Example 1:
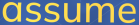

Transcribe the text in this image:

assume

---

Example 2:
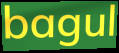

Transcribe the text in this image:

bagul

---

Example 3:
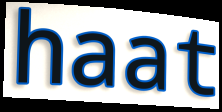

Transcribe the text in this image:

haat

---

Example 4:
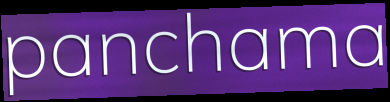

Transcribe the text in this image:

panchama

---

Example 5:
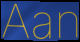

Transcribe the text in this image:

Aan